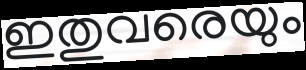
ഇതുവരെയും